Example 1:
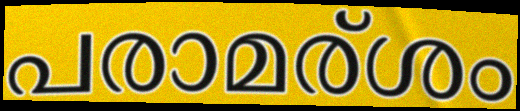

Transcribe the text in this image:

പരാമര്ശം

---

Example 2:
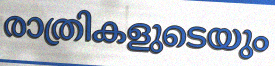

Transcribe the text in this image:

രാത്രികളുടെയും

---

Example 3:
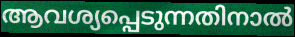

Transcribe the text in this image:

ആവശ്യപ്പെടുന്നതിനാൽ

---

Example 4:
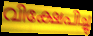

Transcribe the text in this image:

വിക്ഷേപിച്ചു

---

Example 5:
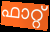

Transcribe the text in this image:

ഫാറ്റ്